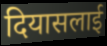
दियासलाई